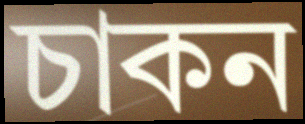
চাকন